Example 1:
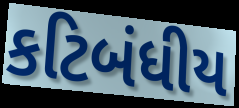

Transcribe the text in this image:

કટિબંધીય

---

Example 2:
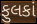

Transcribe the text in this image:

ફુલકાં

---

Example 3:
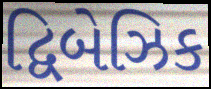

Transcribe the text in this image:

દ્વિબેઝિક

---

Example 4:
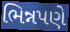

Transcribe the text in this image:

ભિન્નપણે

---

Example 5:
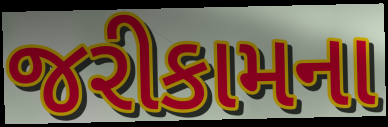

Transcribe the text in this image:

જરીકામના